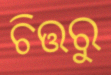
ଚିତ୍ତରୁ